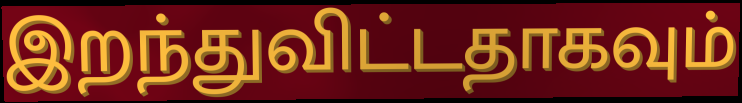
இறந்துவிட்டதாகவும்